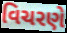
વિચરણે